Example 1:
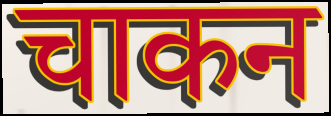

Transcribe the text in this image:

चाकन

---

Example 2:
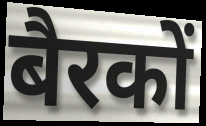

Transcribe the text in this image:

बैरकों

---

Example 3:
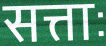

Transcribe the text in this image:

सत्ताः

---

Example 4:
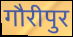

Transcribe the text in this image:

गौरीपुर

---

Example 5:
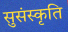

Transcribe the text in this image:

सुसंस्कृति